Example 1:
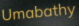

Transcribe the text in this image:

Umabathy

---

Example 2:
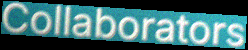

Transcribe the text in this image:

Collaborators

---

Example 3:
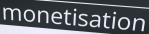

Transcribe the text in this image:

monetisation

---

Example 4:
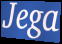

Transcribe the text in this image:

Jega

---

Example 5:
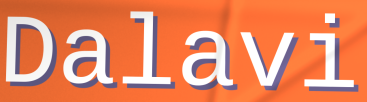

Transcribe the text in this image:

Dalavi